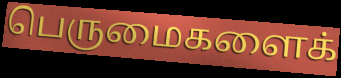
பெருமைகளைக்